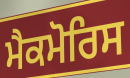
ਮੈਕਮੋਰਿਸ